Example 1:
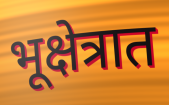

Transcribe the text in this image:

भूक्षेत्रात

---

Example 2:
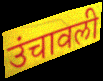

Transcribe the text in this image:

उंचावली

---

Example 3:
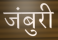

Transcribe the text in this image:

जंबुरी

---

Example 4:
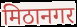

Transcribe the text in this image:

मिठानगर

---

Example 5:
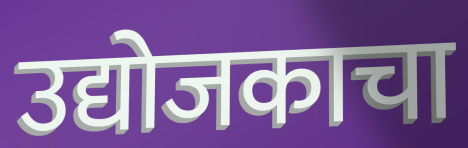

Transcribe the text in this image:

उद्योजकाचा